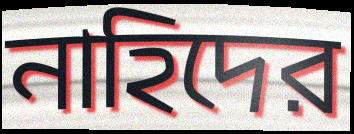
নাহিদের